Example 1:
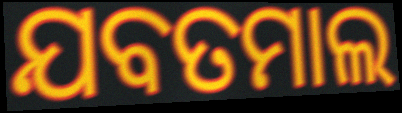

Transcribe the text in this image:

ଯବତମାଲ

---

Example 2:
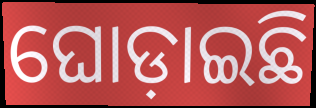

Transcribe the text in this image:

ଘୋଡ଼ାଇଛି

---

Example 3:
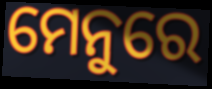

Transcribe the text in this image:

ମେନୁରେ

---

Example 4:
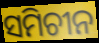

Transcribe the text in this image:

ସମିଚୀନ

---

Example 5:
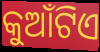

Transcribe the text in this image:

କୁଆଁଟିଏ